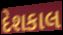
દેશકાલ